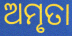
ଅମୃତା